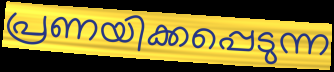
പ്രണയിക്കപ്പെടുന്ന